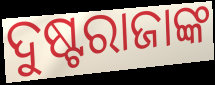
ଦୁଷ୍ଟରାଜାଙ୍କ